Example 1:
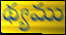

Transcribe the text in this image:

థ్యము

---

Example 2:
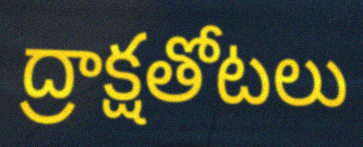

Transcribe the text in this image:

ద్రాక్షతోటలు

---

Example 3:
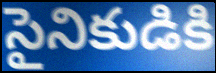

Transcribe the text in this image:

సైనికుడికి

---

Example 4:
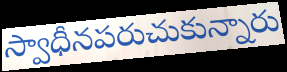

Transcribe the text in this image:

స్వాధీనపరుచుకున్నారు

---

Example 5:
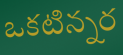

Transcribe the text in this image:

ఒకటిన్నర